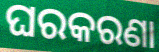
ଘରକରଣା